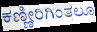
ಕಣ್ಣೀರಿಗಿಂತಲೂ